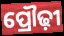
ପ୍ରୌଢ଼ୀ